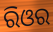
ରିଓର